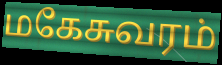
மகேசுவரம்